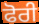
ਫੋਰੀ